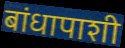
बांधापाशी